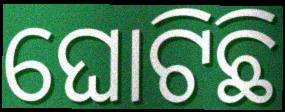
ଘୋଟିଛି